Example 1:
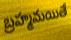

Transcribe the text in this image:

బ్రహ్మమయితే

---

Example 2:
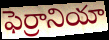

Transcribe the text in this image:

ఫెర్రానియా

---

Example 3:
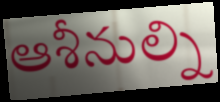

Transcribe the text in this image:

ఆశీనుల్ని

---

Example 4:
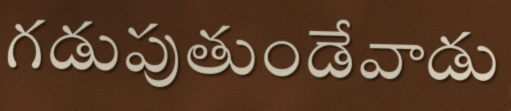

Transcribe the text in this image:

గడుపుతుండేవాడు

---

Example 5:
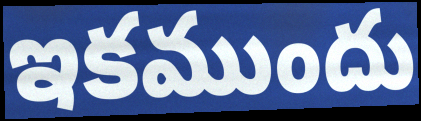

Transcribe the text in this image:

ఇకముందు